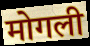
मोगली